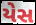
યેસ